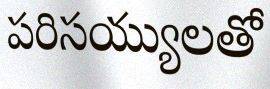
పరిసయ్యులతో